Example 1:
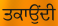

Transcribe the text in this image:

ਤਕਾਉਂਦੀ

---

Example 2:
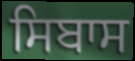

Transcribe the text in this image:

ਸਿਬਾਸ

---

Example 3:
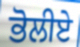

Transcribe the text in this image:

ਭੋਲੀਏ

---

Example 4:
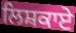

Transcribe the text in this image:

ਲਿਸ਼ਕਾਏ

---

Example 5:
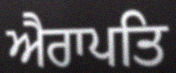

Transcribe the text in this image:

ਐਰਾਪਤਿ